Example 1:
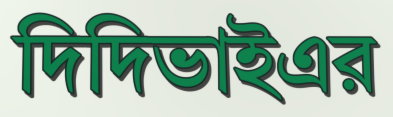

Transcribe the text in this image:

দিদিভাইএর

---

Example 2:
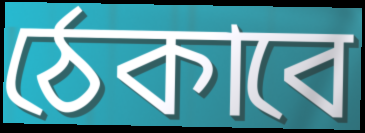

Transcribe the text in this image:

ঠেকাবে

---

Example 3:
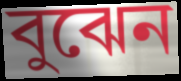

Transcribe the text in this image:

বুঝেন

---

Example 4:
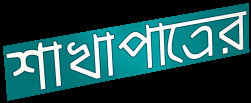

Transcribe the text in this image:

শাখাপাত্রের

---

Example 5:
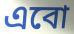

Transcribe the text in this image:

এবো